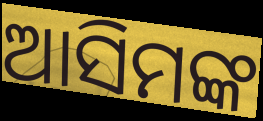
ଆସିମଙ୍କ